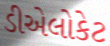
ડીએલોકેટ